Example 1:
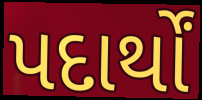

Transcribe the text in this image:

પદાર્થોં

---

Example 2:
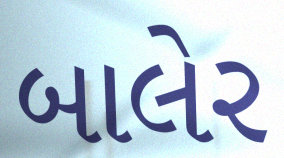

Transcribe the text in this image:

બાલેર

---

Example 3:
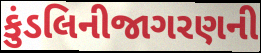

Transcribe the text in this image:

કુંડલિનીજાગરણની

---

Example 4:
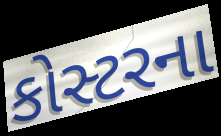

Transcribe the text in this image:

કોસ્ટરના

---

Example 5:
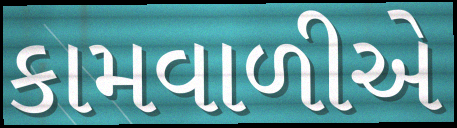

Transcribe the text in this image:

કામવાળીએ